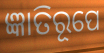
ଜ୍ଞାତିରୂପେ